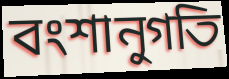
বংশানুগতি